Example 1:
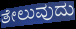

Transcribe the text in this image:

ತೇಲುವುದು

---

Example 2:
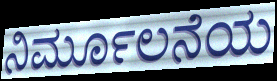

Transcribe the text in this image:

ನಿರ್ಮೂಲನೆಯ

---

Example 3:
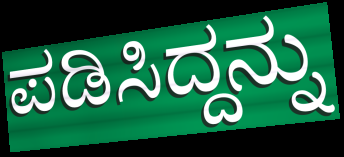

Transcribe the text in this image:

ಪಡಿಸಿದ್ದನ್ನು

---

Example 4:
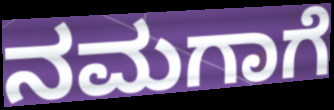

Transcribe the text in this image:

ನಮಗಾಗೆ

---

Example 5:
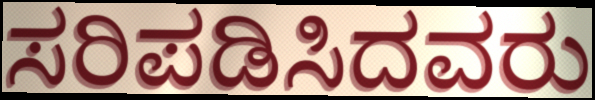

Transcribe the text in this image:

ಸರಿಪಡಿಸಿದವರು